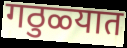
गठुळ्यात